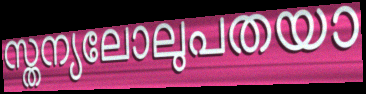
സ്തന്യലോലുപതയാ